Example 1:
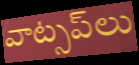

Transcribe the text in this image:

వాట్సప్‌లు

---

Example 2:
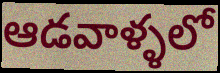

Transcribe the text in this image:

ఆడవాళ్ళలో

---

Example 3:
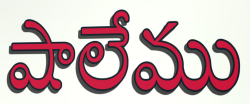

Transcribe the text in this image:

షాలేము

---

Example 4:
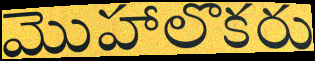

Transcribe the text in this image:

మొహాలొకరు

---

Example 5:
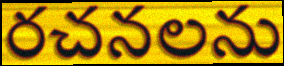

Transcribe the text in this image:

రచనలను